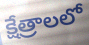
క్షేత్రాలలో